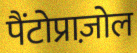
पैंटोप्राज़ोल